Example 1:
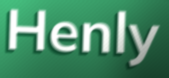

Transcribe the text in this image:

Henly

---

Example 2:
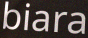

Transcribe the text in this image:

biara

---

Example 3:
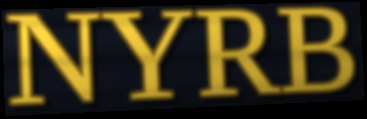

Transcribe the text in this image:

NYRB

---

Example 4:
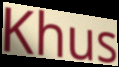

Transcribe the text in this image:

Khus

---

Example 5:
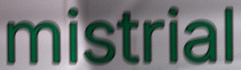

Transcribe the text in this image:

mistrial